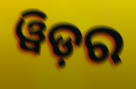
ୱିଡ଼ର